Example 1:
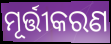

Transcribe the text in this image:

ମୂର୍ତ୍ତୀକରଣ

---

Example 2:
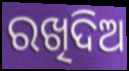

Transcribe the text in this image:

ରଖିଦିଅ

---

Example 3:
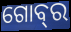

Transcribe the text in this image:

ଗୋବ୍‌ର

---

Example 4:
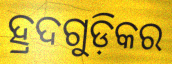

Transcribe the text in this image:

ହ୍ରଦଗୁଡ଼ିକର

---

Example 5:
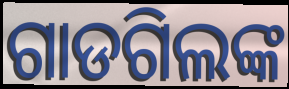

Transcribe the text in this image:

ଗାଡଗିଲଙ୍କ